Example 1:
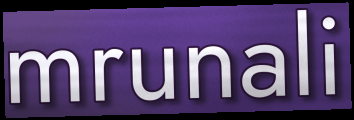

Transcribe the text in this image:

mrunali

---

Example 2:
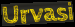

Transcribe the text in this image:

Urvasi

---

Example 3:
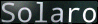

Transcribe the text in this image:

Solaro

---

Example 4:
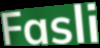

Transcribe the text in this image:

Fasli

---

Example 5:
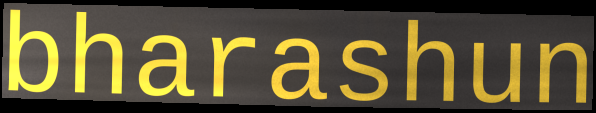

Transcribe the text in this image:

bharashun